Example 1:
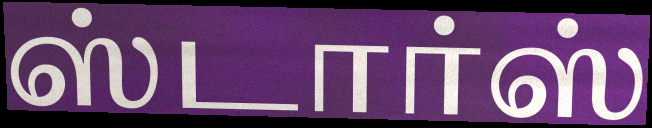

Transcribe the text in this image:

ஸ்டார்ஸ்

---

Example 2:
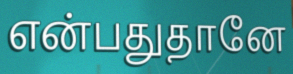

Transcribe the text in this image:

என்பதுதானே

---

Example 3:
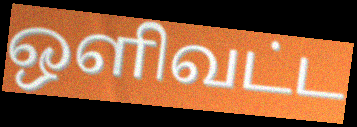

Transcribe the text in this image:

ஒளிவட்ட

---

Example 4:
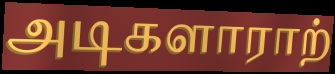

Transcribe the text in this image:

அடிகளாராற்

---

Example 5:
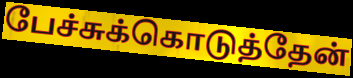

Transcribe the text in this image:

பேச்சுக்கொடுத்தேன்